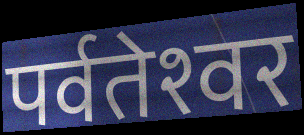
पर्वतेश्वर